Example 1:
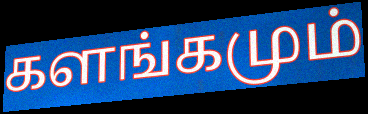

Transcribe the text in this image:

களங்கமும்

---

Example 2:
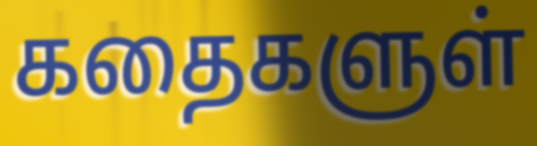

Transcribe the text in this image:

கதைகளுள்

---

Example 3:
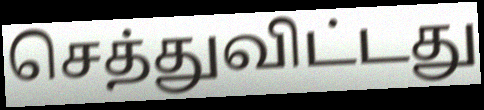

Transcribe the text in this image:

செத்துவிட்டது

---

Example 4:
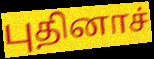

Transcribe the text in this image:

புதினாச்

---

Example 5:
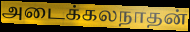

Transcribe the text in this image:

அடைக்கலநாதன்